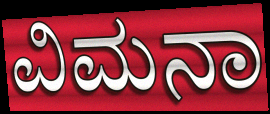
ವಿಮನಾ